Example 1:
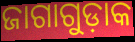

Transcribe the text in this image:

ଜାଗାଗୁଡ଼ାକ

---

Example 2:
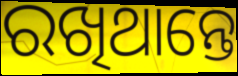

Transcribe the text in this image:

ରଖିଥାନ୍ତେ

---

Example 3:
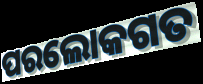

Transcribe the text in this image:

ପରଲୋକଗତ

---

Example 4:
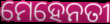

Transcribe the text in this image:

ମେହେନତୀ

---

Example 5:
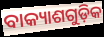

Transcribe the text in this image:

ବାକ୍ୟାଶଗୁଡ଼ିକ